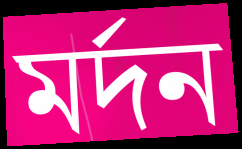
মর্দন